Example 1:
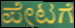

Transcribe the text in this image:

ಪೇಟಗೆ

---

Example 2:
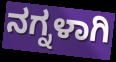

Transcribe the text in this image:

ನಗ್ನಳಾಗಿ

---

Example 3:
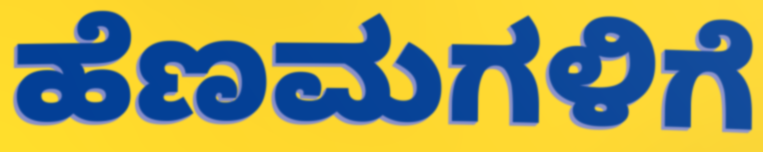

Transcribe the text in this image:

ಹೆಣಮಗಳಿಗೆ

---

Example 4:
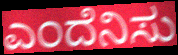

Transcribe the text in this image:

ಎಂದೆನಿಸು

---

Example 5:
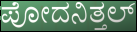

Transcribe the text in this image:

ಪೋದನಿತ್ತಲ್